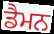
ਡੈਮਨ